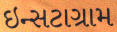
ઇન્સટાગ્રામ